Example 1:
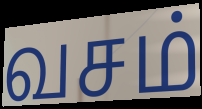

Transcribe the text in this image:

வசம்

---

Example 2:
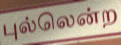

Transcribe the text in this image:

புல்லென்ற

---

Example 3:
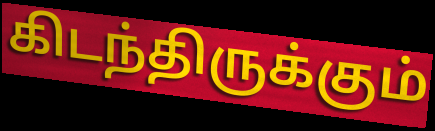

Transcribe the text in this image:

கிடந்திருக்கும்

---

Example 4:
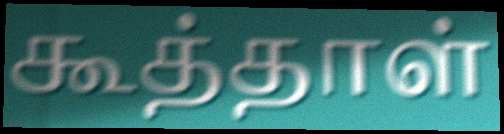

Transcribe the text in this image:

கூத்தாள்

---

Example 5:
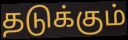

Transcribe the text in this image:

தடுக்கும்